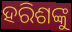
ହରିଶଙ୍କୁ